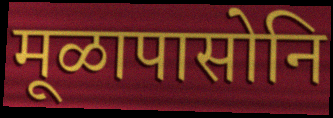
मूळापासोनि